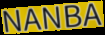
NANBA